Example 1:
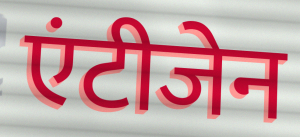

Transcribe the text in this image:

एंटीजेन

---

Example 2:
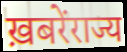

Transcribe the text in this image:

ख़बरेंराज्य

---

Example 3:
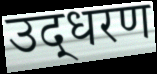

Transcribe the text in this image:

उद्धरण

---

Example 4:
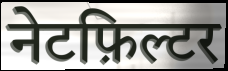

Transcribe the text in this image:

नेटफ़िल्टर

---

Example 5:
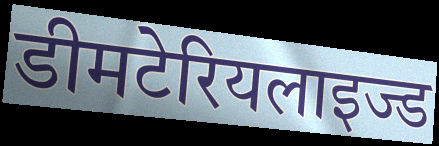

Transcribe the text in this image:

डीमटेरियलाइज्ड